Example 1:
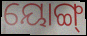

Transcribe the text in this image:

ୟୋଙ୍ଗ୍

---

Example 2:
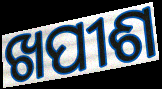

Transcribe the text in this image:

ଖପୀଶ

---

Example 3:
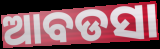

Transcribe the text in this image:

ଆବଡସା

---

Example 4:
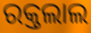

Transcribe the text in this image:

ରକ୍ତଲାଲ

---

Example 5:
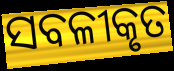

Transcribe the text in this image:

ସବଳୀକୃତ